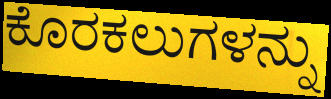
ಕೊರಕಲುಗಳನ್ನು